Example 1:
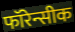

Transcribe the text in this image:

फॉरेन्सीक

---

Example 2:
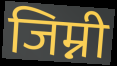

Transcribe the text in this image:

जिम्नी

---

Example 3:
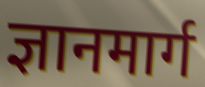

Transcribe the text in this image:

ज्ञानमार्ग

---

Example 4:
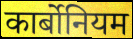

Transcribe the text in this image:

कार्बोनियम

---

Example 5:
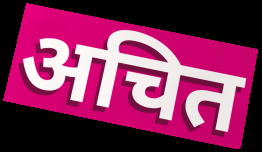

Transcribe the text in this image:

अचित